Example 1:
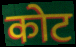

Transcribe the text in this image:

कोट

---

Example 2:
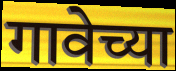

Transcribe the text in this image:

गावेच्या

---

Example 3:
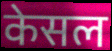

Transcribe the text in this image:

केसल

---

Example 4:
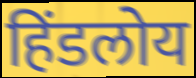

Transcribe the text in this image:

हिंडलोय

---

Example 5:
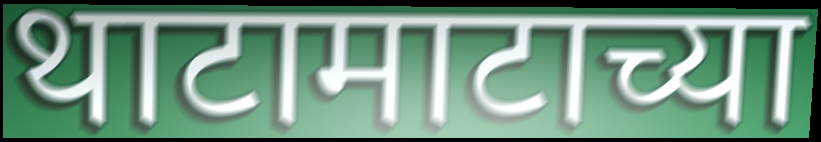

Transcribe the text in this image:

थाटामाटाच्या